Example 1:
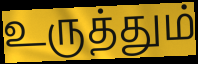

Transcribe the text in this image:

உருத்தும்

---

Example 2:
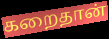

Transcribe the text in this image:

கறைதான்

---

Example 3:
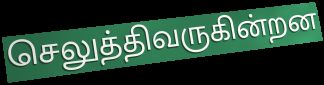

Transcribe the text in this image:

செலுத்திவருகின்றன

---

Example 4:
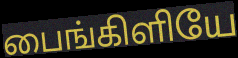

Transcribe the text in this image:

பைங்கிளியே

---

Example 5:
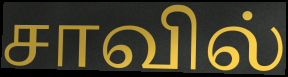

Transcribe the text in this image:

சாவில்